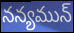
నన్యమున్